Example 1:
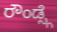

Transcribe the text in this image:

ರೌಂಡ್ಸ್ಗೆ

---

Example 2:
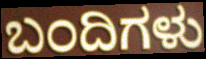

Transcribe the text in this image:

ಬಂದಿಗಳು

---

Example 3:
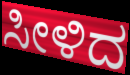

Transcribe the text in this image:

ಸೀಳಿದ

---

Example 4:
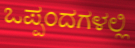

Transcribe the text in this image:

ಒಪ್ಪಂದಗಳಲ್ಲಿ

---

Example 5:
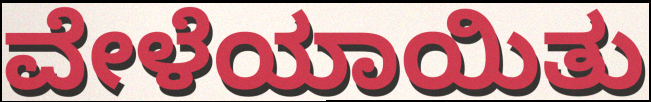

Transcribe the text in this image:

ವೇಳೆಯಾಯಿತು